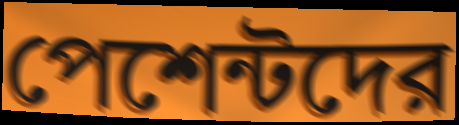
পেশেন্টদের